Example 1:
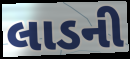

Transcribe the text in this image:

લાડની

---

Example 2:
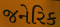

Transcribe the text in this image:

જનેરિક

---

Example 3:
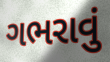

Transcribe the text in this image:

ગભરાવું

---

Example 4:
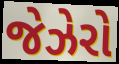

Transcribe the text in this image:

જેઝેરો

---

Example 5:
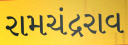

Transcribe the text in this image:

રામચંદ્રરાવ